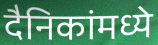
दैनिकांमध्ये